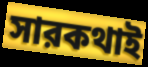
সারকথাই